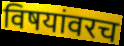
विषयांवरच